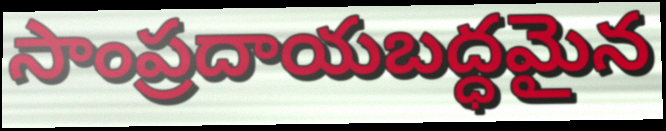
సాంప్రదాయబద్ధమైన